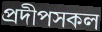
প্রদীপসকল